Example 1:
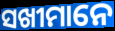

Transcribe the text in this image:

ସଖୀମାନେ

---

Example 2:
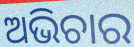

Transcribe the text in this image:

ଅଭିଚାର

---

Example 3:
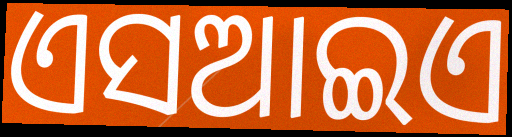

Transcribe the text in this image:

ଏସଆଇଏ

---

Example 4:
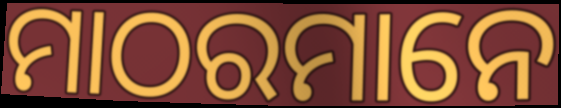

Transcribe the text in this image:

ମାଠରମାନେ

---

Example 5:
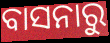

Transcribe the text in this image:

ବାସନାରୁ